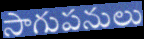
సాగుపనులు